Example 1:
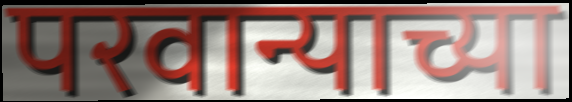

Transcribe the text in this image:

परवान्याच्या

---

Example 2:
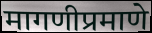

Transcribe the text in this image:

मागणीप्रमाणे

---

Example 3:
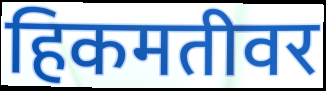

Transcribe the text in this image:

हिकमतीवर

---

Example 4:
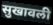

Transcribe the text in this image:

सुखावली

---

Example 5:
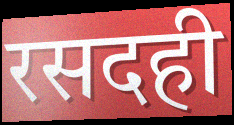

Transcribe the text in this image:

रसदही